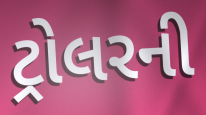
ટ્રોલરની